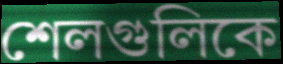
শেলগুলিকে